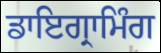
ਡਾਇਗ੍ਰਾਮਿੰਗ